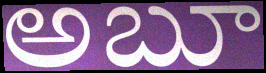
అబూ